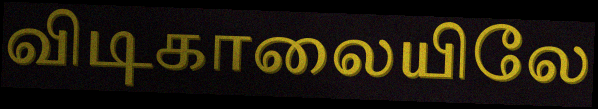
விடிகாலையிலே